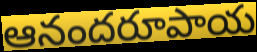
ఆనందరూపాయ